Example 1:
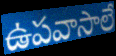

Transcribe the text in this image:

ఉపవాసాలే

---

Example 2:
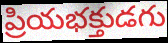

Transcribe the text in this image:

ప్రియభక్తుడగు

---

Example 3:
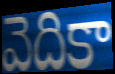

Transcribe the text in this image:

వెదికా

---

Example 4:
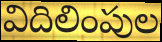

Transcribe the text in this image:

విదిలింపుల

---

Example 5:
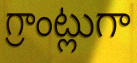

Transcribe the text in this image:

గ్రాంట్లుగా